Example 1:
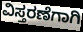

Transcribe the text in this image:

ವಿಸ್ತರಣೆಗಾಗಿ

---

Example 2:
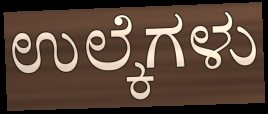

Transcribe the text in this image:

ಉಲ್ಕೆಗಳು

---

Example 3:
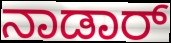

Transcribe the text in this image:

ನಾಡಾರ್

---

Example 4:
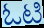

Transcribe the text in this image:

ಓಟಿ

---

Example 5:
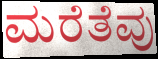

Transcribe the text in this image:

ಮರೆತೆವು